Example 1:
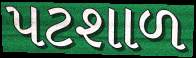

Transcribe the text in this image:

પટશાળ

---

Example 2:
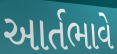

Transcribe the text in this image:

આર્તભાવે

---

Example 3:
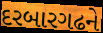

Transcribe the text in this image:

દરબારગઢને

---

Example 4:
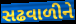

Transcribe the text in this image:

સઢવાળીને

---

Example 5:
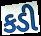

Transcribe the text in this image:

કડી